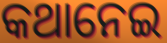
କଥାନେଇ